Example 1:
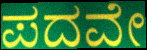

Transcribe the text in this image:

ಪದವೇ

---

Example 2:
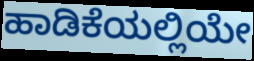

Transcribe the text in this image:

ಹಾಡಿಕೆಯಲ್ಲಿಯೇ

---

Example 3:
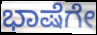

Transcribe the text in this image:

ಭಾಷೆಗೇ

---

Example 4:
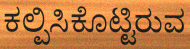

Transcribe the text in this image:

ಕಲ್ಪಿಸಿಕೊಟ್ಟಿರುವ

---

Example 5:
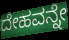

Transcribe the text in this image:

ದೇಹವನ್ನೇ